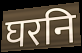
घरनि